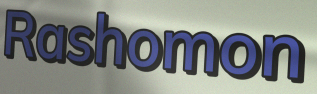
Rashomon